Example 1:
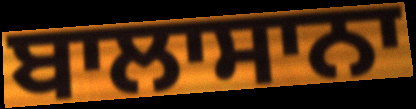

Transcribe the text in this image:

ਬਾਲਾਸਾਨਾ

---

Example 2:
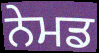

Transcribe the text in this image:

ਨੇਮਡ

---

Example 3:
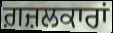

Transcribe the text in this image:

ਗ਼ਜ਼ਲਕਾਰਾਂ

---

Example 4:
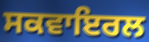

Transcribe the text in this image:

ਸਕਵਾਇਰਲ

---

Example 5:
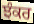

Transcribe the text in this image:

ਝੰਕਰ